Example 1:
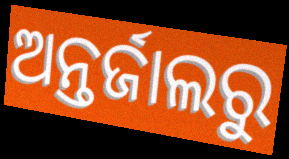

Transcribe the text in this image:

ଅନ୍ତର୍ଜାଲରୁ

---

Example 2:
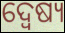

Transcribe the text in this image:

ଦ୍ୱେଷ୍ୟ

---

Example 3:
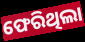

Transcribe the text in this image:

ଫେରିଥିଲା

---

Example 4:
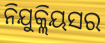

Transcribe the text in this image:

ନିଯୁକ୍ଲିୟସର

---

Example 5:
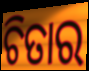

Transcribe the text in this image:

ଚିତାର